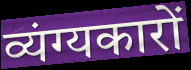
व्‍यंग्‍यकारों